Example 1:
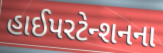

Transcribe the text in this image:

હાઈપરટેન્શનના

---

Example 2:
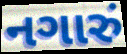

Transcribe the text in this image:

નગારું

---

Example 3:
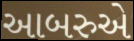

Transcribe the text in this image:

આબરુએ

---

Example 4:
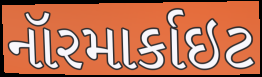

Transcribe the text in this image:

નૉરમાર્કાઇટ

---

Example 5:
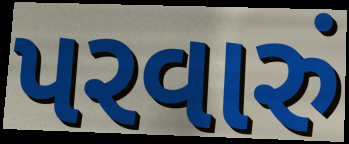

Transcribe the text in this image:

પરવારું